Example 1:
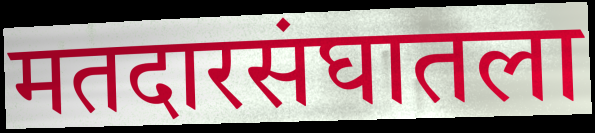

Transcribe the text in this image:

मतदारसंघातला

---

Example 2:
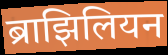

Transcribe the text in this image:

ब्राझिलियन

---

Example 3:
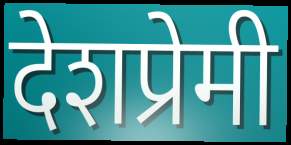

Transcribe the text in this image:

देशप्रेमी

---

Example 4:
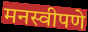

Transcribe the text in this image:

मनस्वीपणे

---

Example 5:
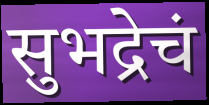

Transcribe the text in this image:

सुभद्रेचं